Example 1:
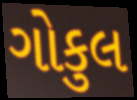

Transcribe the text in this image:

ગોકુલ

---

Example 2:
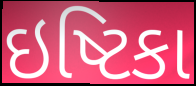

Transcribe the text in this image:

ઇષ્ટિકા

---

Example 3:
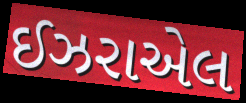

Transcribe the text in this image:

ઈઝરાએલ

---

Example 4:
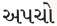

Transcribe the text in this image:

અપચો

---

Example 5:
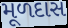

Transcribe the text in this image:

મૂળદાસ